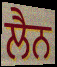
ਲੈਨ